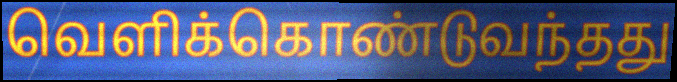
வெளிக்கொண்டுவந்தது